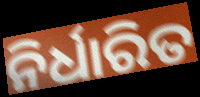
ନିର୍ଧାରିତ